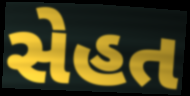
સેહત